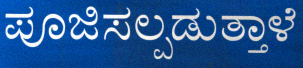
ಪೂಜಿಸಲ್ಪಡುತ್ತಾಳೆ